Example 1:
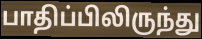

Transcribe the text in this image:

பாதிப்பிலிருந்து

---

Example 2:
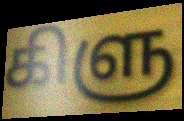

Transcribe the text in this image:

கிளு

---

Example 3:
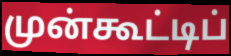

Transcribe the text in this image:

முன்கூட்டிப்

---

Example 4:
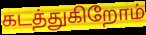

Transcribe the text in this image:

கடத்துகிறோம்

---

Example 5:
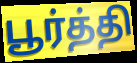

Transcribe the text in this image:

பூர்த்தி